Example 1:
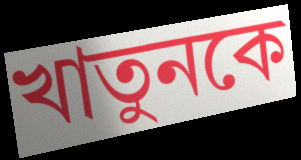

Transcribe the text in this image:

খাতুনকে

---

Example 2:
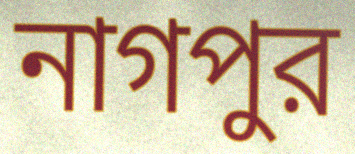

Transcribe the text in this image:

নাগপুর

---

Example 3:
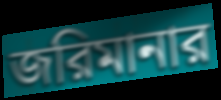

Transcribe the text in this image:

জরিমানার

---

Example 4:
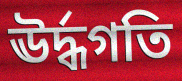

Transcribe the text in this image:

ঊর্দ্ধগতি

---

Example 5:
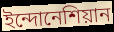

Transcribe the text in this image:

ইন্দোনেশিয়ান